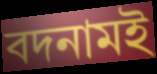
বদনামই